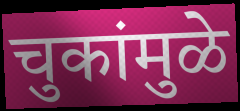
चुकांमुळे